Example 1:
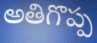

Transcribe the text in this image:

అతిగొప్ప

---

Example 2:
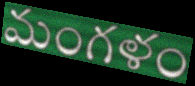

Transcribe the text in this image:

మంగళం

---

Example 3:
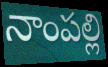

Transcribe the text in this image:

నాంపల్లి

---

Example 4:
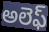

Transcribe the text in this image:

అలెఫ్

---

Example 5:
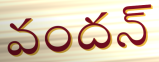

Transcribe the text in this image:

వందన్